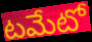
టమేటో